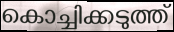
കൊച്ചിക്കടുത്ത്